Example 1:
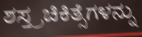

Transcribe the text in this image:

ಶಸ್ತ್ರಚಿಕಿತ್ಸೆಗಳನ್ನು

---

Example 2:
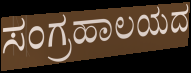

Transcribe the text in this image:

ಸಂಗ್ರಹಾಲಯದ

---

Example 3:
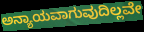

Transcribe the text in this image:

ಅನ್ಯಾಯವಾಗುವುದಿಲ್ಲವೇ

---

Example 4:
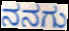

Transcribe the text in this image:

ನನಗು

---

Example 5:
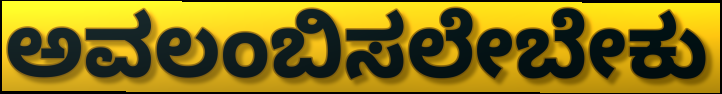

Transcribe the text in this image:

ಅವಲಂಬಿಸಲೇಬೇಕು